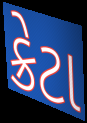
ક્રેટા